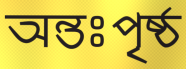
অন্তঃপৃষ্ঠ